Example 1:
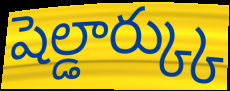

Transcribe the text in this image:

షెల్డార్క్కు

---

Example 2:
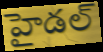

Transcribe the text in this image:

హైడల్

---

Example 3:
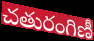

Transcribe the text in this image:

చతురంగిణీ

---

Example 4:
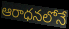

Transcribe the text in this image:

ఆరాధనలోనే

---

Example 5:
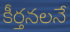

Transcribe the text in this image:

కీర్తనలనే